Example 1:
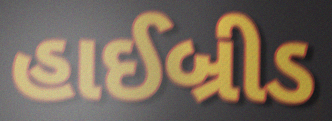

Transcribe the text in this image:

હાઈબ્રીડ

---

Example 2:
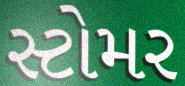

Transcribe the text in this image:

સ્ટોમર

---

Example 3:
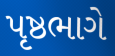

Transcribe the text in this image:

પૃષ્ઠભાગે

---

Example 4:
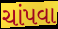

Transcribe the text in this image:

ચાંપવા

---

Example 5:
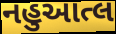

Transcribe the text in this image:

નહુઆત્લ